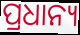
ପ୍ରଧାନ୍ୟ